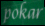
pokar